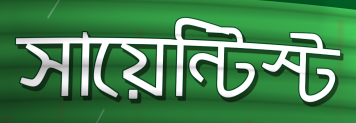
সায়েন্টিস্ট